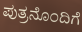
ಪುತ್ರನೊಂದಿಗೆ